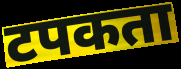
टपकता